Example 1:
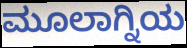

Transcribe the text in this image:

ಮೂಲಾಗ್ನಿಯ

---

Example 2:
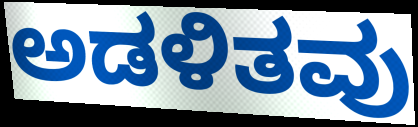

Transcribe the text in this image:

ಅಡಳಿತವು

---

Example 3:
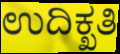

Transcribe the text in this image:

ಉದಿಕ್ಖತಿ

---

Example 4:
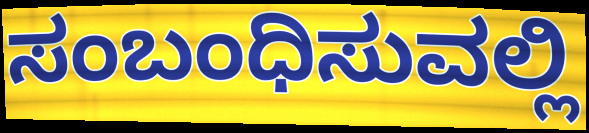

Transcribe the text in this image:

ಸಂಬಂಧಿಸುವಲ್ಲಿ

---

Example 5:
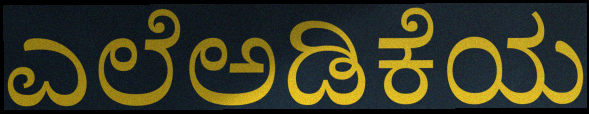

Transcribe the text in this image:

ಎಲೆಅಡಿಕೆಯ